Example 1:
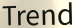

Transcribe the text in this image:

Trend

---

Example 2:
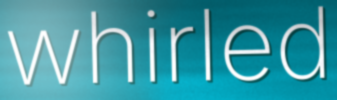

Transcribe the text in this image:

whirled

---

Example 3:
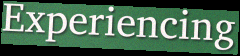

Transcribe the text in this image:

Experiencing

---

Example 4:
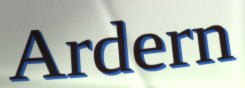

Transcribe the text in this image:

Ardern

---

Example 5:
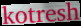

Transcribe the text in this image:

kotresh